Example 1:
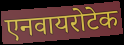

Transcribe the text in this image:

एनवायरोटेक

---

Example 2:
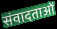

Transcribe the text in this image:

संवादताओं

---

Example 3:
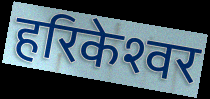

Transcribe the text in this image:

हरिकेश्वर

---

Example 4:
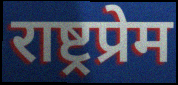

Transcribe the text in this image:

राष्ट्रप्रेम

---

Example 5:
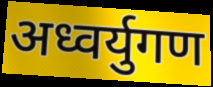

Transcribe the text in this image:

अध्वर्युगण